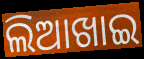
ଲିଆଖାଇ